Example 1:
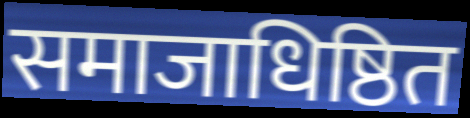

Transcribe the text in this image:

समाजाधिष्ठित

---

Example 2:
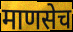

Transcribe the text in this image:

माणसेच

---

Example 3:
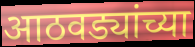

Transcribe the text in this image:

आठवड्यांच्या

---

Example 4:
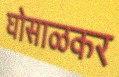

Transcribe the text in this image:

घोसाळकर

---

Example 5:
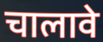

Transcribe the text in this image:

चालावे